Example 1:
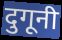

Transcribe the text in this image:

दुगूनी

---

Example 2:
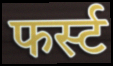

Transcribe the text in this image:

फर्स्‍ट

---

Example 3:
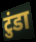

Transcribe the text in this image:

टुंडा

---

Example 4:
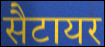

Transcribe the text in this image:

सैटायर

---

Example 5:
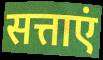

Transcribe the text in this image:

सत्ताएं